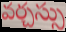
వర్చస్సు